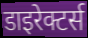
डाइरेक्टर्स